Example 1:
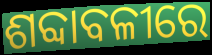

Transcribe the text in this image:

ଶବ୍ଦାବଳୀରେ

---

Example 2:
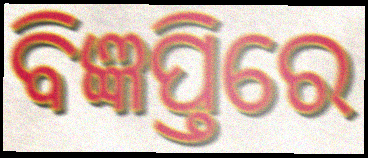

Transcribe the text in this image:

ବିଜ୍ଞପ୍ତିରେ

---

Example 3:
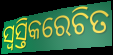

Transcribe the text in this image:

ସ୍ୱସ୍ତିକରେଚିତ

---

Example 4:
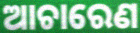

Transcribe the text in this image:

ଆଚାରେଣ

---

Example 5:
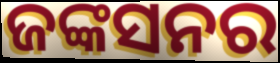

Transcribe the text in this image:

ଜଙ୍କସନର